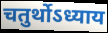
चतुर्थोऽध्याय